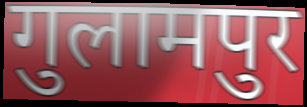
गुलामपुर